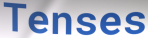
Tenses